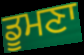
ਡੂਮਣਾ